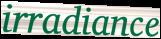
irradiance